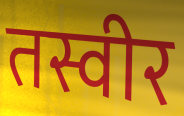
तस्वीर